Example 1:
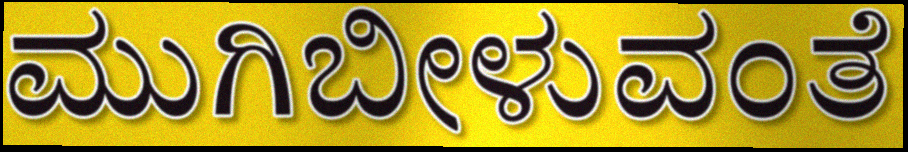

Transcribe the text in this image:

ಮುಗಿಬೀಳುವಂತೆ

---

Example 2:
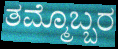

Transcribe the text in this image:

ತಮ್ಮೊಬ್ಬರ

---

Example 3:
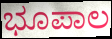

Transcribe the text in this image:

ಭೂಪಾಲ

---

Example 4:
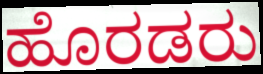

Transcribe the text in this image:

ಹೊರಡರು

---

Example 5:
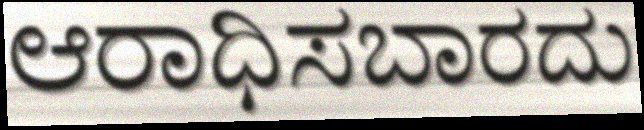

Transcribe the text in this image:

ಆರಾಧಿಸಬಾರದು